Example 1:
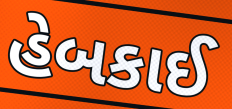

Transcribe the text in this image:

હેબકાઈ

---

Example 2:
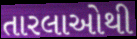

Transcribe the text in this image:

તારલાઓથી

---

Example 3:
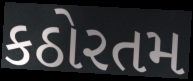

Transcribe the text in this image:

કઠોરતમ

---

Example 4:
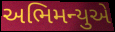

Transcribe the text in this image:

અભિમન્યુએ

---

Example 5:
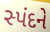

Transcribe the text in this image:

સ્પંદને